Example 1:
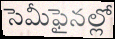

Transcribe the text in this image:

సెమీఫైనల్లో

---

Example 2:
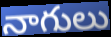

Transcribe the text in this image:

నాగులు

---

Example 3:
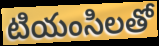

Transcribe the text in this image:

టియంసిలతో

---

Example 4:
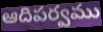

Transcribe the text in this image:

ఆదిపర్వము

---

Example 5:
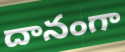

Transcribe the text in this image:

దానంగా